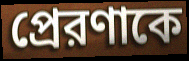
প্রেরণাকে